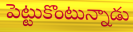
పెట్టుకొంటున్నాడు